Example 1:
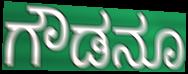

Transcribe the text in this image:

ಗೌಡನೂ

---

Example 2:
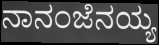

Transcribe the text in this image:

ನಾನಂಜೆನಯ್ಯ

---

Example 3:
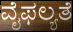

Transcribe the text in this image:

ವೈಫಲ್ಯತೆ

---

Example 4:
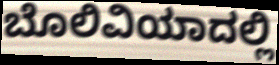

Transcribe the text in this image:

ಬೊಲಿವಿಯಾದಲ್ಲಿ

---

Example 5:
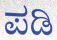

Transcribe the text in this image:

ಪಡಿ